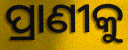
ପ୍ରାଣୀକୁ